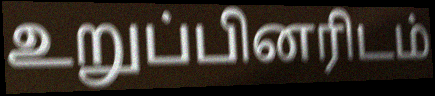
உறுப்பினரிடம்